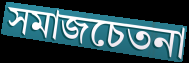
সমাজচেতনা